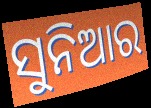
ସୁନିଆର